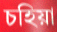
চহিয়া